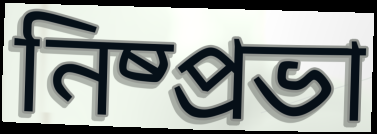
নিষ্প্রভা